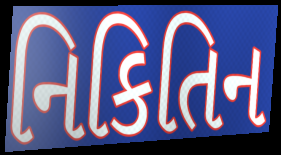
નિકિતિન